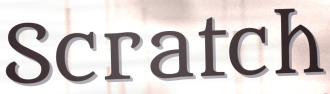
Scratch